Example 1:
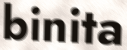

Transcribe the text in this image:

binita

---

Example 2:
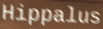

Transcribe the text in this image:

Hippalus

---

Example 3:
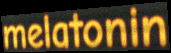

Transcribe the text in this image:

melatonin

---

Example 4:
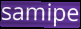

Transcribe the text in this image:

samipe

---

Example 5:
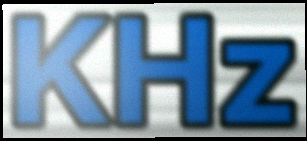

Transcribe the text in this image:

KHz